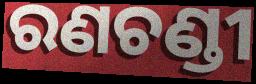
ରଣଚଣ୍ଡୀ